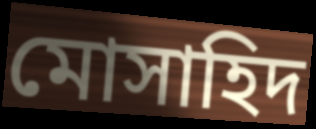
মোসাহিদ